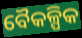
ବୈକଳ୍ପିକ